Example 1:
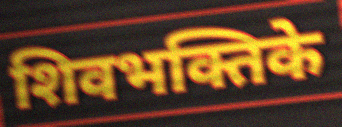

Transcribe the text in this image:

शिवभक्तिके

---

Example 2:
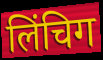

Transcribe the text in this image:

लिंचिग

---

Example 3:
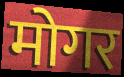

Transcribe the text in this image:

मोगर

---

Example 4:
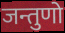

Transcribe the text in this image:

जन्तुणो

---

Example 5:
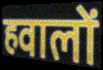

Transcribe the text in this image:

हवालों